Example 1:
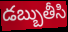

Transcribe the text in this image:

డబ్బుతీసి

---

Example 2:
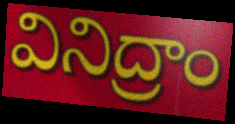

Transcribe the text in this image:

వినిద్రాం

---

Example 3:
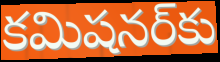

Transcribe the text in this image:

కమిషనర్‌కు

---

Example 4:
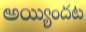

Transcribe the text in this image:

అయ్యిందట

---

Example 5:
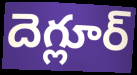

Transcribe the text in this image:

దెగ్లూర్